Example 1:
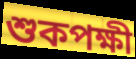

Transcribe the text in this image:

শুকপক্ষী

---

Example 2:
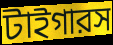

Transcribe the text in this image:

টাইগারস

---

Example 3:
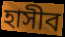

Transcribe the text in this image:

হাসীব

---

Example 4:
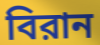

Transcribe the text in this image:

বিরান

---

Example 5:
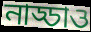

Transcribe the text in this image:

নাড্ডাও